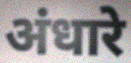
अंधारे